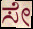
ಸೇ